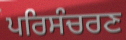
ਪਰਿਸੰਚਰਣ